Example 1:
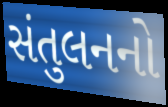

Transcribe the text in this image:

સંતુલનનો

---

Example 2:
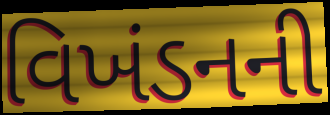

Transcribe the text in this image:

વિખંડનની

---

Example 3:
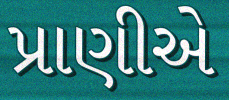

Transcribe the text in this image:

પ્રાણીએ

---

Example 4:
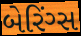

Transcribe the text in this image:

બેરિંગ્સ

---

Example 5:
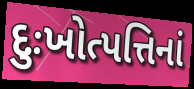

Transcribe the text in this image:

દુઃખોત્પત્તિનાં